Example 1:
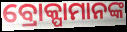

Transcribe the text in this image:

ବ୍ରୋକ୍ପାମାନଙ୍କ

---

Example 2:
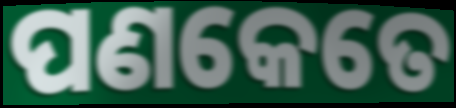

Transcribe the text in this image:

ପଣକେତେ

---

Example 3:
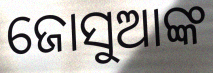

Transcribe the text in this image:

ଜୋସୁଆଙ୍କ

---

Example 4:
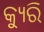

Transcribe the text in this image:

କ୍ୟୁରି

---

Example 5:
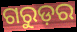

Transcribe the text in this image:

ଗରୁଡ଼ର